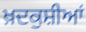
ਖ਼ਦਕੁਸ਼ੀਆਂ